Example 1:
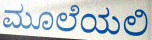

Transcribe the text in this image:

ಮೂಲೆಯಲಿ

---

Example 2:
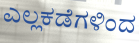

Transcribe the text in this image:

ಎಲ್ಲಕಡೆಗಳಿಂದ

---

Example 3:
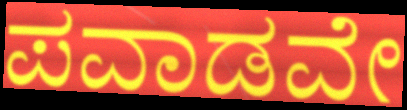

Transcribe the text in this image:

ಪವಾಡವೇ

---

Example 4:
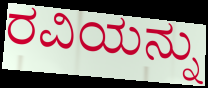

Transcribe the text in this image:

ರವಿಯನ್ನು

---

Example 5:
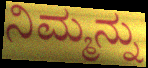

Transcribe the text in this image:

ನಿಮ್ಮನ್ನು